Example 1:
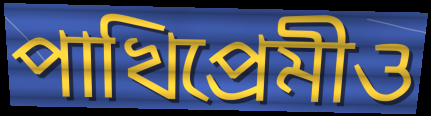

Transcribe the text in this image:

পাখিপ্রেমীও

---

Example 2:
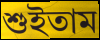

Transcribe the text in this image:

শুইতাম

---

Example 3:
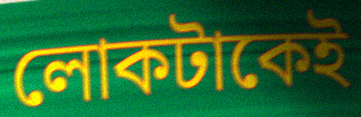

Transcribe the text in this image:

লোকটাকেই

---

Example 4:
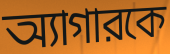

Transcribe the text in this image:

অ্যাগারকে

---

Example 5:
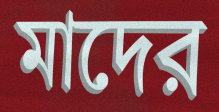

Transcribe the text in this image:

মাদের